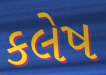
કલેષ